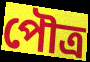
পৌত্র